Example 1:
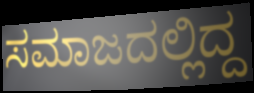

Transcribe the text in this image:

ಸಮಾಜದಲ್ಲಿದ್ದ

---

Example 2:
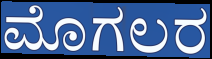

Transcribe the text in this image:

ಮೊಗಲರ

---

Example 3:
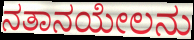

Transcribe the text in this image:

ನತಾನಯೇಲನು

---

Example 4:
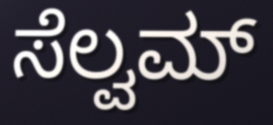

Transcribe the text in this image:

ಸೆಲ್ವಮ್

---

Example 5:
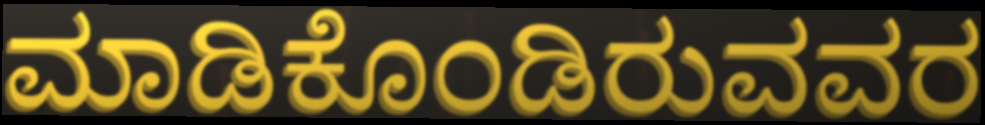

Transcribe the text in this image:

ಮಾಡಿಕೊಂಡಿರುವವರ